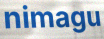
nimagu